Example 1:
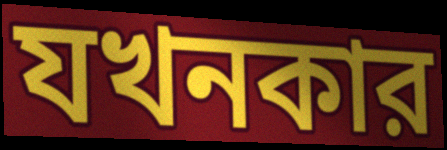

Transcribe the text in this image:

যখনকার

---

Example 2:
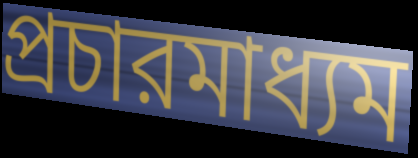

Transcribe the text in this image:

প্রচারমাধ্যম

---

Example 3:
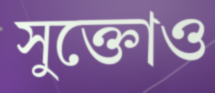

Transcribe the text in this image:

সুক্তোও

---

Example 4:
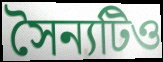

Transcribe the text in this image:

সৈন্যটিও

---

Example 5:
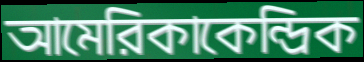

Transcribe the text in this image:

আমেরিকাকেন্দ্রিক